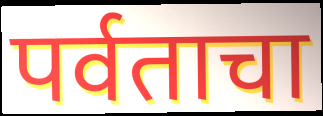
पर्वताचा